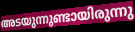
അടയുന്നുണ്ടായിരുന്നു